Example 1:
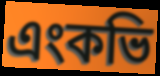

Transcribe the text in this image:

এংকভি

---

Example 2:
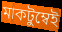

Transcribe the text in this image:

মাকটুম্বেই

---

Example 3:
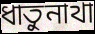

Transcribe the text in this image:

ধাতুনাথা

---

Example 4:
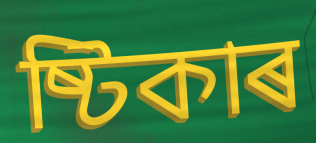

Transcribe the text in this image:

ষ্টিকাৰ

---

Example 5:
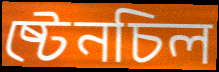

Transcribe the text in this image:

ষ্টেনচিল